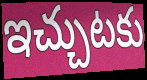
ఇచ్చుటకు